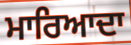
ਮਾਰਿਆਦਾ